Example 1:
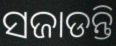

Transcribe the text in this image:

ସଜାଡନ୍ତି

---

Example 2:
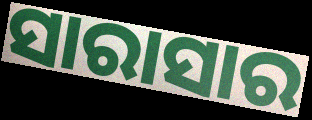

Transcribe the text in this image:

ସାରାସାର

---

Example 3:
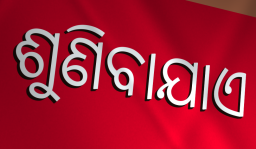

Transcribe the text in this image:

ଶୁଣିବାଯାଏ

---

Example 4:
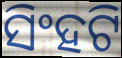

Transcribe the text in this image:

ସିଂହଟି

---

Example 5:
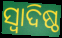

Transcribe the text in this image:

ସ୍ୱାଦିଷ୍ଠ